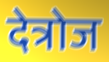
देत्रोज